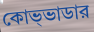
কোভ্ভাডার